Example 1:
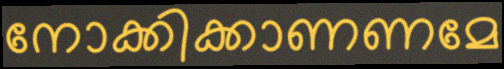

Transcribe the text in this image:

നോക്കിക്കാണണമേ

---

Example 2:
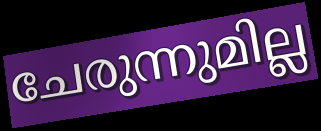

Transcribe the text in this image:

ചേരുന്നുമില്ല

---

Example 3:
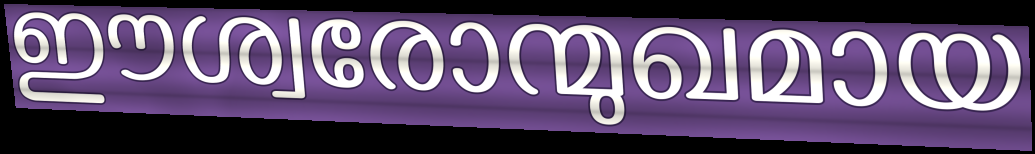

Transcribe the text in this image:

ഈശ്വരോന്മുഖമായ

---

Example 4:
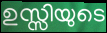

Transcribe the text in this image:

ഉസ്സിയുടെ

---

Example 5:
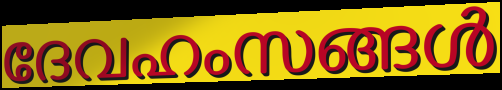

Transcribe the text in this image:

ദേവഹംസങ്ങൾ